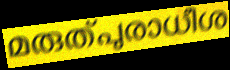
മരുത്പുരാധീശ